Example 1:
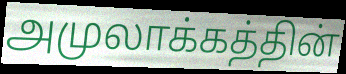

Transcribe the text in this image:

அமுலாக்கத்தின்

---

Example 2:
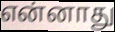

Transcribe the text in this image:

என்னாது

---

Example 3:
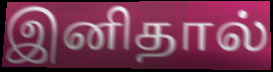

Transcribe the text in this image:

இனிதால்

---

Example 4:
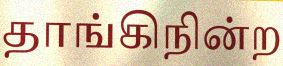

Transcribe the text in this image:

தாங்கிநின்ற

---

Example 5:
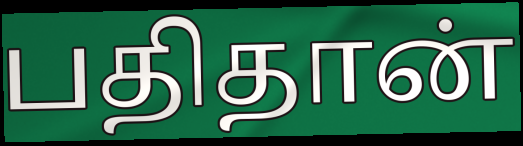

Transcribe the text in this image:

பதிதான்